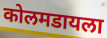
कोलमडायला